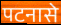
पटनासे